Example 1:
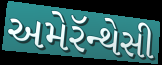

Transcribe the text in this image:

અમેરૅન્થેસી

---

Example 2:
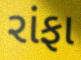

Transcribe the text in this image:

રાંફા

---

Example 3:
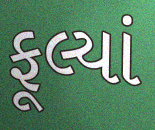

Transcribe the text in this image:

ફૂલ્યાં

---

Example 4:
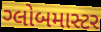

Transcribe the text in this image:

ગ્લોબમાસ્ટર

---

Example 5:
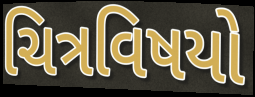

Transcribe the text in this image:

ચિત્રવિષયો